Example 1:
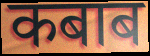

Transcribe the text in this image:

कबाब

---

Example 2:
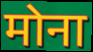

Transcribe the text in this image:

मोना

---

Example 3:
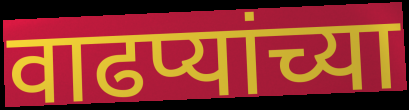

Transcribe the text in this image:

वाढप्यांच्या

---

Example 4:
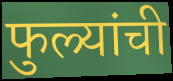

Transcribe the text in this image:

फुल्यांची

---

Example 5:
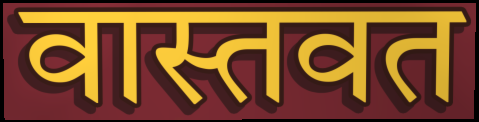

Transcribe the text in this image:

वास्‍तवत